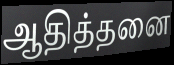
ஆதித்தனை